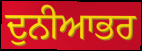
ਦੁਨੀਆਭਰ